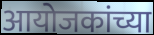
आयोजकांच्या